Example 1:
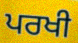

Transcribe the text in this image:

ਪਰਖੀ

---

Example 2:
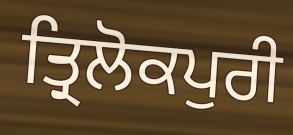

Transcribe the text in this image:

ਤ੍ਰਿਲੋਕਪੁਰੀ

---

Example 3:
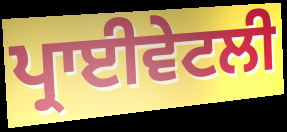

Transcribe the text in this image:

ਪ੍ਰਾਈਵੇਟਲੀ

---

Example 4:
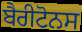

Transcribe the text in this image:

ਬੈਰੀਟੋਨਸ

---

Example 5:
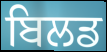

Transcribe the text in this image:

ਬਿਲਡ